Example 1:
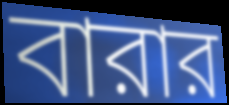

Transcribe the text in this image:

বারার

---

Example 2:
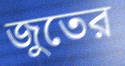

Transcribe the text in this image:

জুতের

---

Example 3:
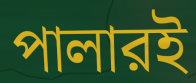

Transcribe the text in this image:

পালারই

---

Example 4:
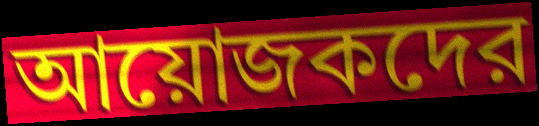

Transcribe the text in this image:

আয়োজকদের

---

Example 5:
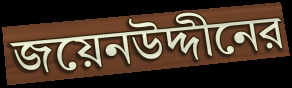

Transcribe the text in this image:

জয়েনউদ্দীনের